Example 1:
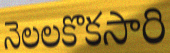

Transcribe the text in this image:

నెలలకొకసారి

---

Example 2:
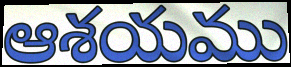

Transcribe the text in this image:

ఆశయము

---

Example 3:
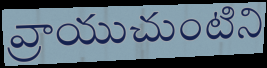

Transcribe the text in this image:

వ్రాయుచుంటిని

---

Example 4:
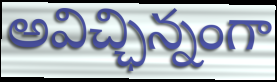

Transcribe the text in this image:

అవిచ్ఛిన్నంగా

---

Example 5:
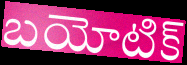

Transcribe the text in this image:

బయోటిక్